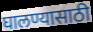
घालण्यासाठी